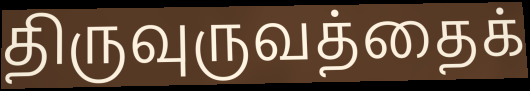
திருவுருவத்தைக்